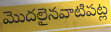
మొదలైనవాటిపట్ల